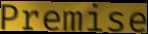
Premise